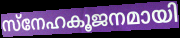
സ്നേഹകൂജനമായി